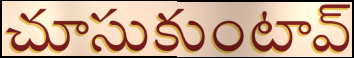
చూసుకుంటావ్